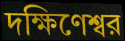
দক্ষিণেশ্বর